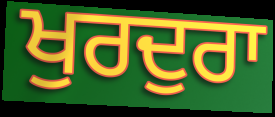
ਖੁਰਦੁਰਾ